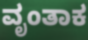
ವೃಂತಾಕ